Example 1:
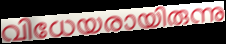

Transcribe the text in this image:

വിധേയരായിരുന്നു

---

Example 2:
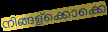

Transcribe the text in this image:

നിങ്ങള്ക്കൊക്കെ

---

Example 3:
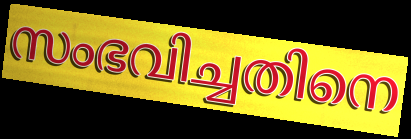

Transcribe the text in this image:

സംഭവിച്ചതിനെ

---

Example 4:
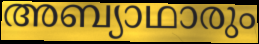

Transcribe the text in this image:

അബ്യാഥാരും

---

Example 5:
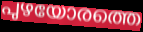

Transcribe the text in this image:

പുഴയോരത്തെ